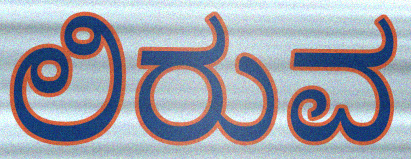
ಲಿರುವ